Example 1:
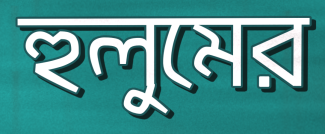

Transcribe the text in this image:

হুলুমের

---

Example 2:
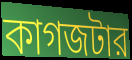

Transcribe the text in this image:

কাগজটার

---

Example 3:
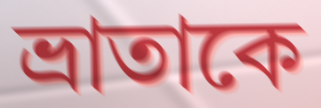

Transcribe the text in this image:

ভ্রাতাকে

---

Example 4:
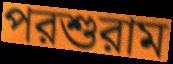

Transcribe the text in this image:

পরশুরাম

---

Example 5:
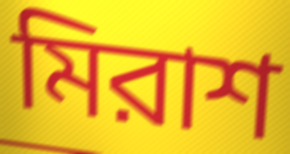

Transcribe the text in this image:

মিরাশ